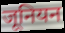
जूनियन